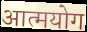
आत्मयोग